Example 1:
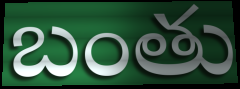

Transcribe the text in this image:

బంతు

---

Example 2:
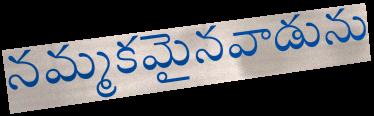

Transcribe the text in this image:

నమ్మకమైనవాడును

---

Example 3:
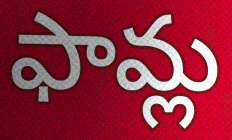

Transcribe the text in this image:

ఫామ్ల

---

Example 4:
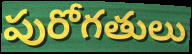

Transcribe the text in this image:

పురోగతులు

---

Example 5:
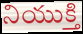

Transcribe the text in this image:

నియుక్తి